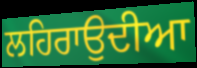
ਲਹਿਰਾਉਦੀਆ